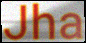
Jha